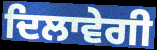
ਦਿਲਾਵੇਗੀ